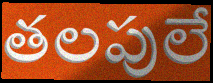
తలపులే